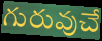
గురువుచే